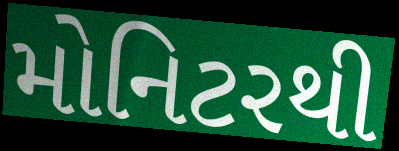
મોનિટરથી